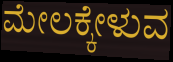
ಮೇಲಕ್ಕೇಳುವ